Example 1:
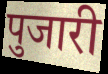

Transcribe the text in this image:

पुजारी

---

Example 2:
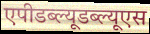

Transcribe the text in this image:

एपीडब्ल्यूडब्ल्यूएस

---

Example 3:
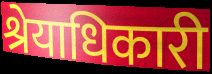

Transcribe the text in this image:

श्रेयाधिकारी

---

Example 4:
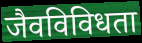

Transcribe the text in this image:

जैवविविधता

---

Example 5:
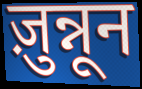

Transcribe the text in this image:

ज़ुन्नून